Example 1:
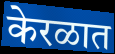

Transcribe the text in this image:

केरळात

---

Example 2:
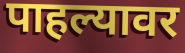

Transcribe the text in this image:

पाहल्यावर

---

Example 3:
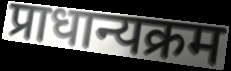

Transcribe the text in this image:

प्राधान्यक्रम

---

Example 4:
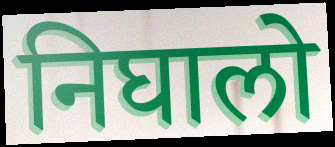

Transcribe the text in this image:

निघालो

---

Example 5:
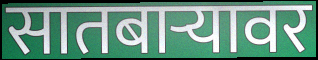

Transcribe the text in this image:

सातबाऱ्यावर